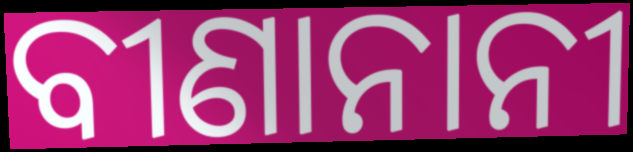
ବୀଣାନାନୀ